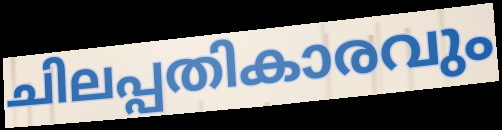
ചിലപ്പതികാരവും